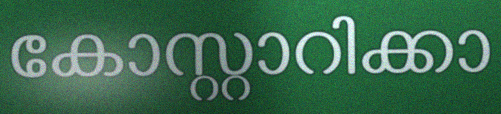
കോസ്റ്റാറിക്കാ